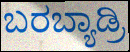
ಬರಬ್ಯಾಡ್ರಿ